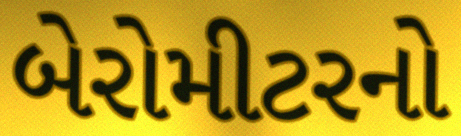
બેરોમીટરનો